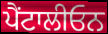
ਪੈਂਟਾਲੀਓਨ